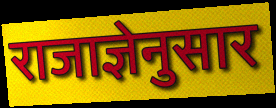
राजाज्ञेनुसार